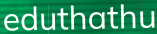
eduthathu